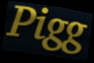
Pigg